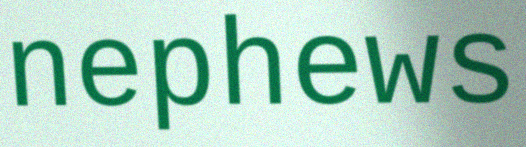
nephews